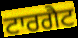
ਟਾਰਗੈਟ